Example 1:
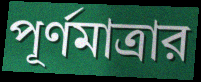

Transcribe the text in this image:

পূর্ণমাত্রার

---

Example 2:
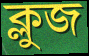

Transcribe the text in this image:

ক্লুজ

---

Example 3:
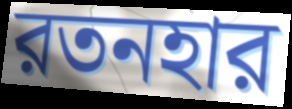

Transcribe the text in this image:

রতনহার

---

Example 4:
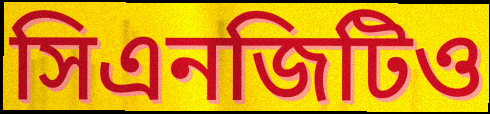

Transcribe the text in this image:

সিএনজিটিও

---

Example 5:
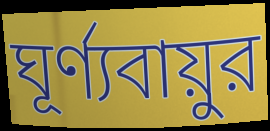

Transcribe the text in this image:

ঘূর্ণ্যবায়ুর